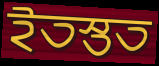
ইতস্তত